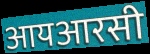
आयआरसी